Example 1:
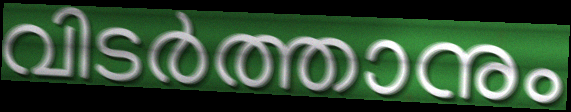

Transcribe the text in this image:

വിടർത്താനും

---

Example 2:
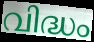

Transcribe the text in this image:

വിദ്ധം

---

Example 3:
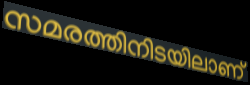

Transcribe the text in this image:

സമരത്തിനിടയിലാണ്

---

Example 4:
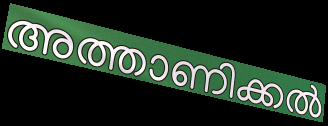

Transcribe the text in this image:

അത്താണിക്കൽ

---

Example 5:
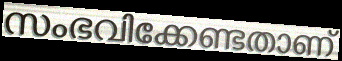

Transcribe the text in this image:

സംഭവിക്കേണ്ടതാണ്